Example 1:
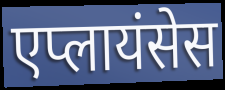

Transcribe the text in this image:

एप्लायंसेस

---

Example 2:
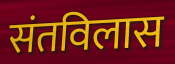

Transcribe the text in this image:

संतविलास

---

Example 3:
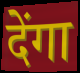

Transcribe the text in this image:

देंगा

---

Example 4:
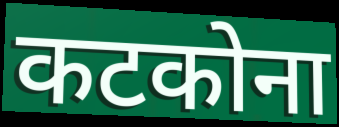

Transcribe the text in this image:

कटकोना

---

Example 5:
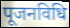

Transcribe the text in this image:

पूजनविधि